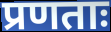
प्रणताः